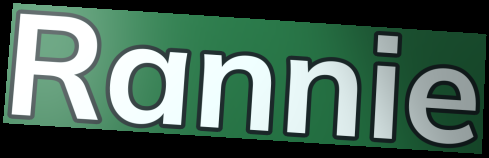
Rannie